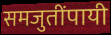
समजुतींपायी